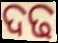
ଦଢ